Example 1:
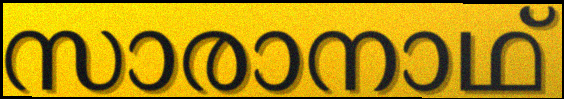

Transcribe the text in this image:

സാരാനാഥ്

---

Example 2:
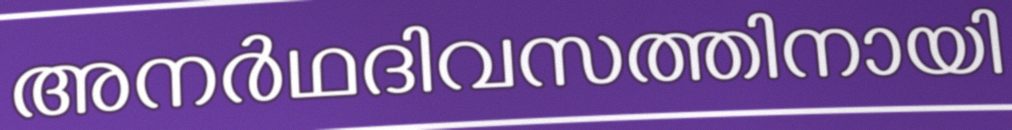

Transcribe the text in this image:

അനർഥദിവസത്തിനായി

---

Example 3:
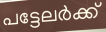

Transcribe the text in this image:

പട്ടേലർക്ക്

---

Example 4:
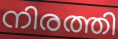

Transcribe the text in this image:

നിരത്തി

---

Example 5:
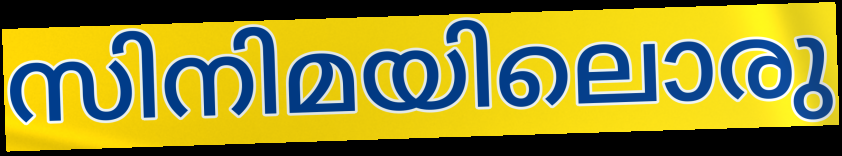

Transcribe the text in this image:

സിനിമയിലൊരു